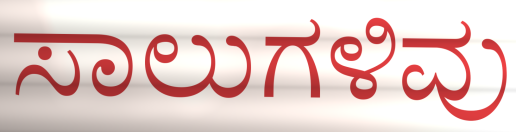
ಸಾಲುಗಳಿವು